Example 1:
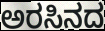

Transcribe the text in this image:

ಅರಸಿನದ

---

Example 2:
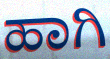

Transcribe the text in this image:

ಹಾಗಿ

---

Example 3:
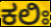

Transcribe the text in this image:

ಕಲಿಃ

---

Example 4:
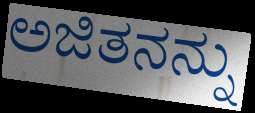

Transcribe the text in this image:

ಅಜಿತನನ್ನು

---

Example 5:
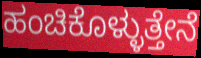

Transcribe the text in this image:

ಹಂಚಿಕೊಳ್ಳುತ್ತೇನೆ